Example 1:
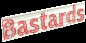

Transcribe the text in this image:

Bastards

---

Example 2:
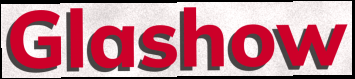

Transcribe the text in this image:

Glashow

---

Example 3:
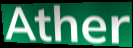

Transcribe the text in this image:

Ather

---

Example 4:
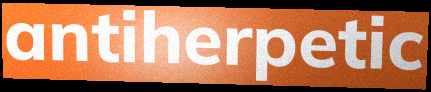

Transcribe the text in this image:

antiherpetic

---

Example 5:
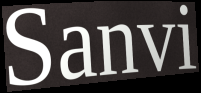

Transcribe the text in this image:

Sanvi